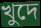
খুদে